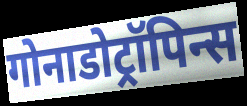
गोनाडोट्रॉपिन्स